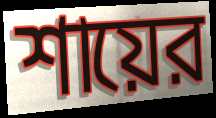
শায়ের